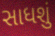
સાધશું